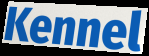
Kennel